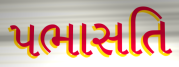
પભાસતિ